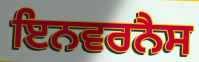
ਇਨਵਰਨੈਸ